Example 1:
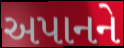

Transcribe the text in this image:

અપાનને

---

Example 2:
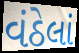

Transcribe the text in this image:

વંઠેલાં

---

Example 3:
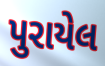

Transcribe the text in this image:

પુરાયેલ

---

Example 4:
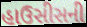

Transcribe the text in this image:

હાઉસીસની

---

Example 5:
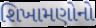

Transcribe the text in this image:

શિખામણોનો